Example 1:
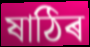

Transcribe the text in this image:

ষাঠিৰ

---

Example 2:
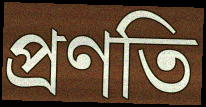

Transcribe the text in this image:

প্ৰণতি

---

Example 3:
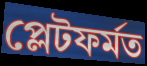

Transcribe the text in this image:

প্লেটফৰ্মত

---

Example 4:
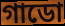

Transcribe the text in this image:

গাডো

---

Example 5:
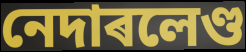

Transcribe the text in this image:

নেদাৰলেণ্ড